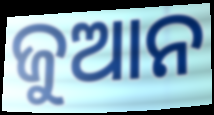
ଜୁଆନ